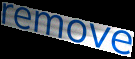
remove